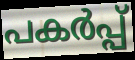
പകർപ്പ്